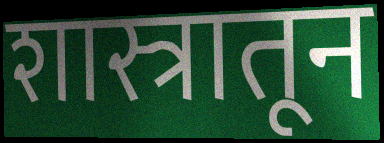
शास्त्रातून